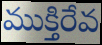
ముక్తిరేవ